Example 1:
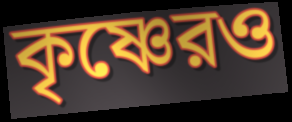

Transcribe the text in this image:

কৃষ্ণেরও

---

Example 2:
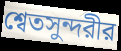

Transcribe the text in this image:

শ্বেতসুন্দরীর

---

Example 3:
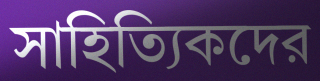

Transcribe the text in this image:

সাহিত্যিকদের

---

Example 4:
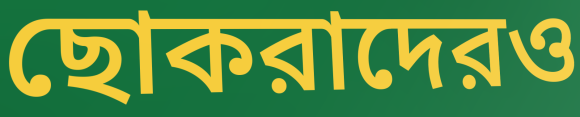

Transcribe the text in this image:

ছোকরাদেরও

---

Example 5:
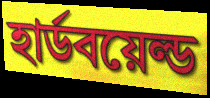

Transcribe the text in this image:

হার্ডবয়েল্ড